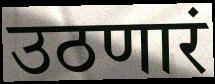
उठणारं